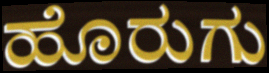
ಹೊರುಗು